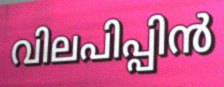
വിലപിപ്പിൻ